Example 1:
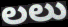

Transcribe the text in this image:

లలు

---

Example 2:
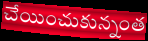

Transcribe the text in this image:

చేయించుకున్నంత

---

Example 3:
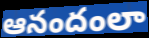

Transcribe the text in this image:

ఆనందంలా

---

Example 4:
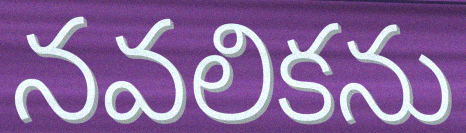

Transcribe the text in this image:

నవలికను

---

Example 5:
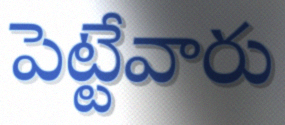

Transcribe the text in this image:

పెట్టేవారు